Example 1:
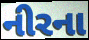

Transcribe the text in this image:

નીરના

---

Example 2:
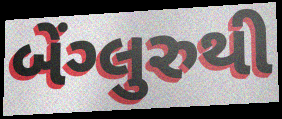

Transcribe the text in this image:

બેંગ્લુરુથી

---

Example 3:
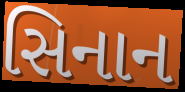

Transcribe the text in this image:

સિનાન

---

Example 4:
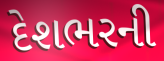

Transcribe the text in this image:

દેશભરની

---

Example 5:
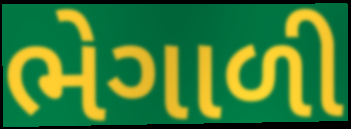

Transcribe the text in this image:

ભેગાળી